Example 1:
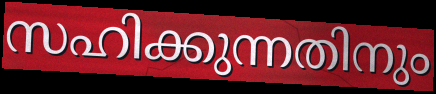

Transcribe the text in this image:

സഹിക്കുന്നതിനും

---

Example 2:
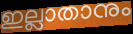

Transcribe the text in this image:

ഇല്ലാതാനും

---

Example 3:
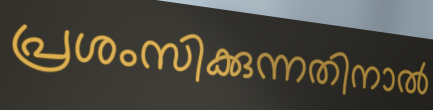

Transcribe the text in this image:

പ്രശംസിക്കുന്നതിനാൽ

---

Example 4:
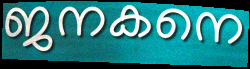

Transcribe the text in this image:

ജനകനെ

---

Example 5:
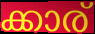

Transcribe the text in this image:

ക്കാര്